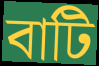
বাটি